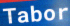
Tabor